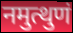
नमुत्थुणं